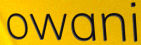
owani